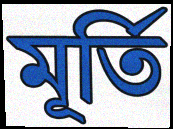
মূৰ্তি